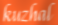
kuzhal